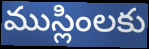
ముస్లింలకు